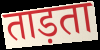
ताड़ता